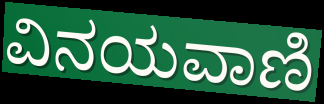
ವಿನಯವಾಣಿ